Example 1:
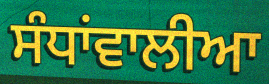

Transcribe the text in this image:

ਸੰਧਾਂਵਾਲੀਆ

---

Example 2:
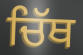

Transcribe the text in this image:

ਚਿੱਥ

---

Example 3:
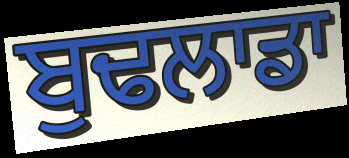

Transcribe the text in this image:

ਬੁਢਲਾਡਾ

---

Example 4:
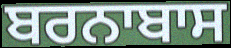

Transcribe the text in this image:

ਬਰਨਾਬਾਸ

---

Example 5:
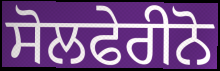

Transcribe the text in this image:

ਸੋਲਫੇਰੀਨੋ